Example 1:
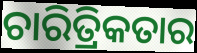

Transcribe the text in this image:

ଚାରିତ୍ରିକତାର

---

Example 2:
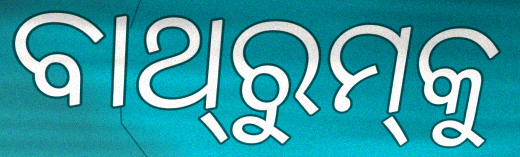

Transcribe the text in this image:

ବାଥ୍‌ରୁମ୍‌କୁ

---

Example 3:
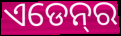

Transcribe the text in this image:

ଏଡେନ୍‍ର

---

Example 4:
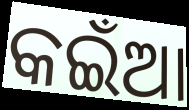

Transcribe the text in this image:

କଇଁଆ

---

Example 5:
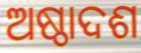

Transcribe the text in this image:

ଅଷ୍ଠାଦଶ